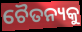
ଚୈତନ୍ୟକୁ